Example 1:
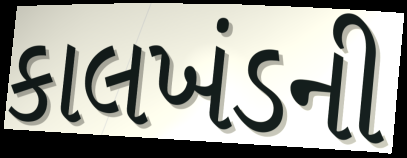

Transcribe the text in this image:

કાલખંડની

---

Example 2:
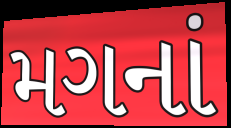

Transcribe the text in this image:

મગનાં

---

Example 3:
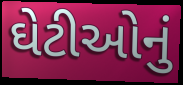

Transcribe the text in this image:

ઘેટીઓનું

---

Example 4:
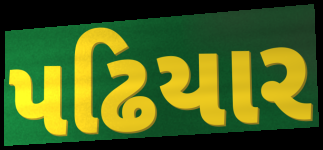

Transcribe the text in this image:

પઢિયાર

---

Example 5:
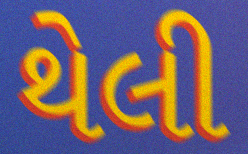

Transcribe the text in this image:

થેલી